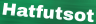
Hatfutsot